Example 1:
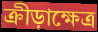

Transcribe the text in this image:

ক্রীড়াক্ষেত্র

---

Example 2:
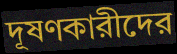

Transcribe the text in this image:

দূষণকারীদের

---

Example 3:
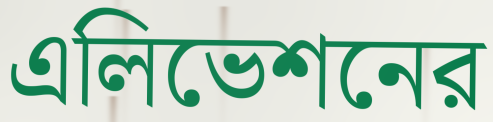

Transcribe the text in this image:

এলিভেশনের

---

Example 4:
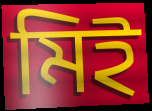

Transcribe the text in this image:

মিই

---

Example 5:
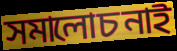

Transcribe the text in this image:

সমালোচনাই